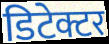
डिटेक्टर